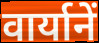
वार्यानें